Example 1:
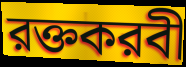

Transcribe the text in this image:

রক্তকরবী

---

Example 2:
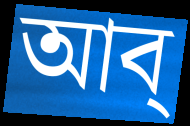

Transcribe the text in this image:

আব্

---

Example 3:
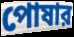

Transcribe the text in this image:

পোষার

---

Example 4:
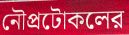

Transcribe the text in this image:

নৌপ্রটোকলের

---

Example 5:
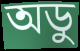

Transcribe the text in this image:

অডু